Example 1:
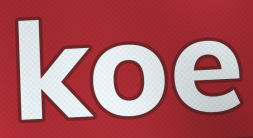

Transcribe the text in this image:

koe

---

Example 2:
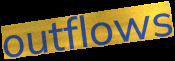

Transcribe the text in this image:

outflows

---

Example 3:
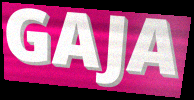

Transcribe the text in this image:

GAJA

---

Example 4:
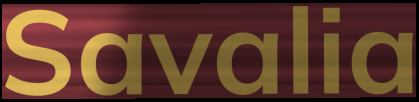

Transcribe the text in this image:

Savalia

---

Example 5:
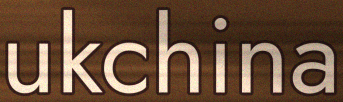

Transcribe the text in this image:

ukchina